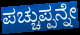
ಪಚ್ಚುಪ್ಪನ್ನೇ